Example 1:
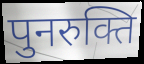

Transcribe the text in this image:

पुनरुक्ति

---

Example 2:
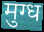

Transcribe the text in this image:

मुग्ध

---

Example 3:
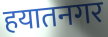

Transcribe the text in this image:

हयातनगर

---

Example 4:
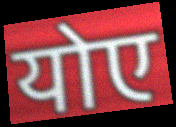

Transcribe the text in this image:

योए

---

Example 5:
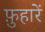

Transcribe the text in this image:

फ़ुहारें